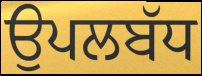
ਉਪਲਬੱਧ